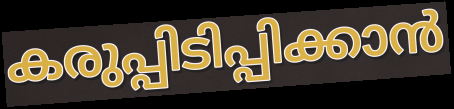
കരുപ്പിടിപ്പിക്കാൻ